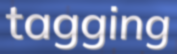
tagging